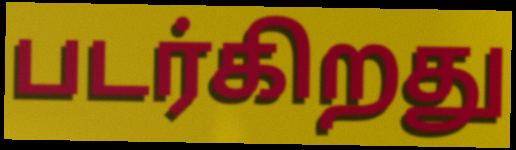
படர்கிறது